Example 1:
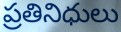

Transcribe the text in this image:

ప్రతినిధులు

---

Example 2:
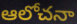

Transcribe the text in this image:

ఆలోచనా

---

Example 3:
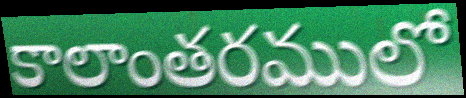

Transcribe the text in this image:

కాలాంతరములో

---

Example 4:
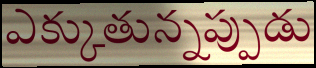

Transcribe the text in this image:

ఎక్కుతున్నప్పుడు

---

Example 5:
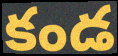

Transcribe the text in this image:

కండ